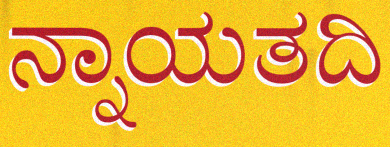
ನ್ನಾಯತದಿ